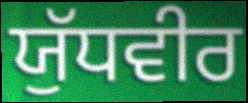
ਯੁੱਧਵੀਰ